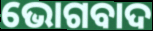
ଭୋଗବାଦ